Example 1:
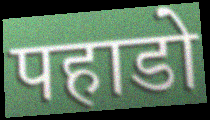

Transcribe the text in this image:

पहाडो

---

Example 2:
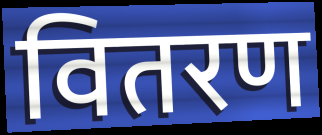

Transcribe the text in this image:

वितरण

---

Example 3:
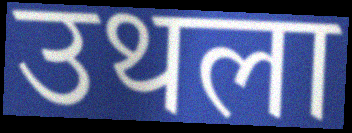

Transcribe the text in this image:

उथला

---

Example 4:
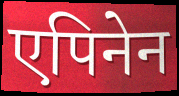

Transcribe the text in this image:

एपिनेन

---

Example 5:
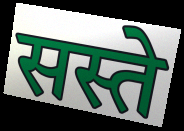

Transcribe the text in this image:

सस्ते